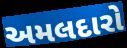
અમલદારો